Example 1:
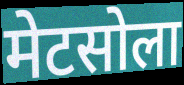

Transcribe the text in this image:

मेटसोला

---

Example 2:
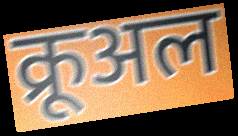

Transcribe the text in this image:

क्रूअल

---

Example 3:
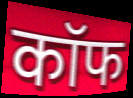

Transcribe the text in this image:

कॉफ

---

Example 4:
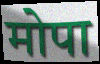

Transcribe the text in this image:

मोपा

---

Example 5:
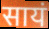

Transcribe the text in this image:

सायं